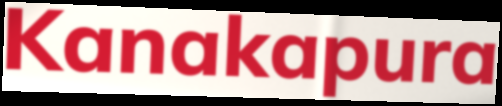
Kanakapura